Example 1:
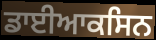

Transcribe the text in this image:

ਡਾਈਆਕਸਿਨ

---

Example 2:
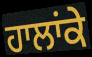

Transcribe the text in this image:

ਹਾਲਾਂਕੇ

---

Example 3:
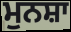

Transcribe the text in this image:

ਮੁਨਸ਼ਾ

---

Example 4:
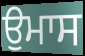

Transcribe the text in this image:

ਉਮਾਸ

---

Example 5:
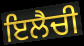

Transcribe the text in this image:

ਇਲੈਚੀ